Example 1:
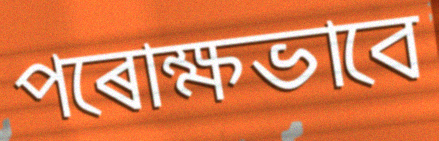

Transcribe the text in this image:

পৰোক্ষভাবে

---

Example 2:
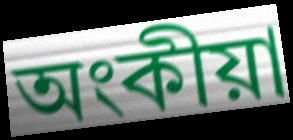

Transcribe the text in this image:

অংকীয়া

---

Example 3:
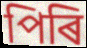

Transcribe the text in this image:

পিৰি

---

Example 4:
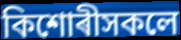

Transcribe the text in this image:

কিশোৰীসকলে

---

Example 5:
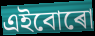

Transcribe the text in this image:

এইবোৰো